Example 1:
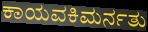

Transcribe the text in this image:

ಕಾಯವಕಿಮರ್ನತು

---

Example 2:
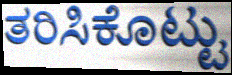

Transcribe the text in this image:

ತರಿಸಿಕೊಟ್ಟು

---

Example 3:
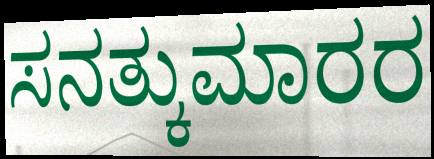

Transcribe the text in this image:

ಸನತ್ಕುಮಾರರ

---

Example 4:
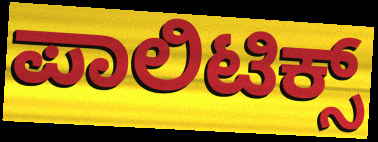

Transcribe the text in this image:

ಪಾಲಿಟಿಕ್ಸ್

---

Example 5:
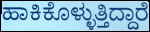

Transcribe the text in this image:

ಹಾಕಿಕೊಳ್ಳುತ್ತಿದ್ದಾರೆ